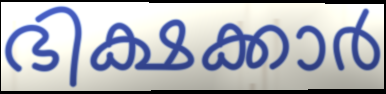
ഭിക്ഷക്കാർ